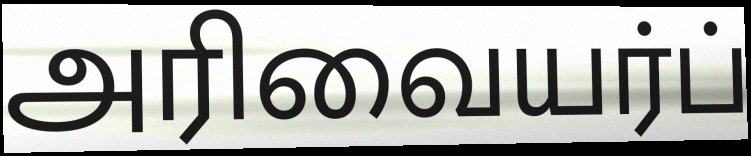
அரிவையர்ப்